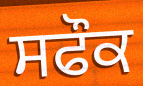
ਸਫੌਕ